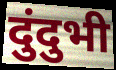
दुंदुभी